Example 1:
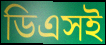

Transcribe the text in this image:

ডিএসই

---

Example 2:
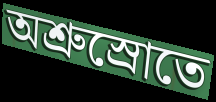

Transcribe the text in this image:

অশ্রুস্রোতে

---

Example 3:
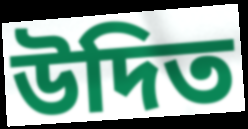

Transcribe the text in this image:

উদিত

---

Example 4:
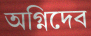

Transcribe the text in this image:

অগ্নিদেব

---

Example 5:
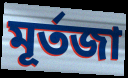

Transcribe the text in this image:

মূর্তজা